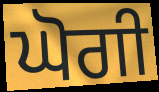
ਘੋਗੀ